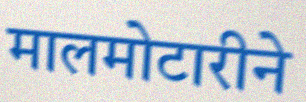
मालमोटारीने